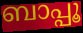
ബാപ്പൂ